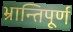
भ्रान्तिपूर्ण